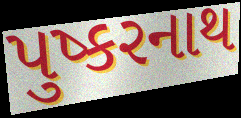
પુષ્કરનાથ